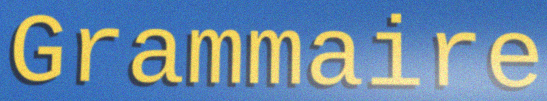
Grammaire